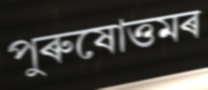
পুৰুষোত্তমৰ